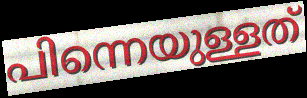
പിന്നെയുള്ളത്